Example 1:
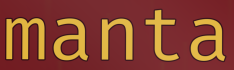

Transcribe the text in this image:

manta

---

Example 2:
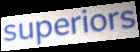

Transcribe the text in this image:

superiors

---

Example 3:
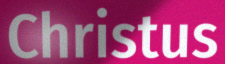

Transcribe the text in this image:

Christus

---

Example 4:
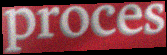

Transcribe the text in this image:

proces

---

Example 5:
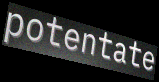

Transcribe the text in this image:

potentate